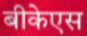
बीकेएस